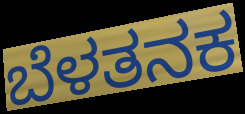
ಬೆಳತನಕ